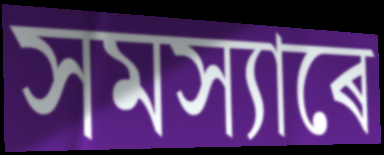
সমস্যাৰে